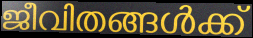
ജീവിതങ്ങൾക്ക്